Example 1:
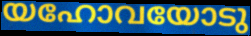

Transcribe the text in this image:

യഹോവയോടു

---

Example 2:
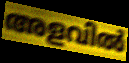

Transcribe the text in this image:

അളവിൽ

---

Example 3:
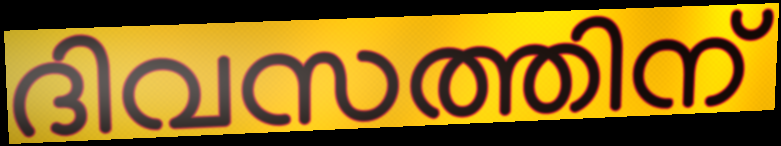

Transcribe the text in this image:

ദിവസത്തിന്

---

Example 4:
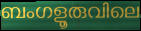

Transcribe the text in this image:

ബംഗളൂരുവിലെ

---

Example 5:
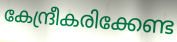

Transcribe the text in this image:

കേന്ദ്രീകരിക്കേണ്ട